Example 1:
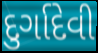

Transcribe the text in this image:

દુર્ગાદેવી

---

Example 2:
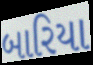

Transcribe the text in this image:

બારિયા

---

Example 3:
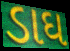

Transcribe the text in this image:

ડાઘ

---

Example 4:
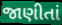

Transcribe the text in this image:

જાણીતાં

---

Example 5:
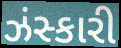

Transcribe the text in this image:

ઝંસ્કારી